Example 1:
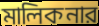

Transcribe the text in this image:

মালিকনার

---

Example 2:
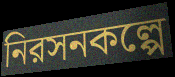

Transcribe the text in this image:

নিরসনকল্পে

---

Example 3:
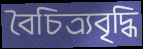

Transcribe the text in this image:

বৈচিত্র্যবৃদ্ধি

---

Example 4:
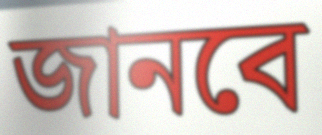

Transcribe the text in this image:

জানবে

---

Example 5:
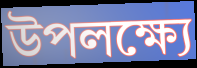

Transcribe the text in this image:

উপলক্ষ্যে